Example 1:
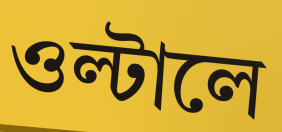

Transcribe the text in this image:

ওল্টালে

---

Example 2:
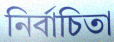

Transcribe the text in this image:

নির্বাচিতা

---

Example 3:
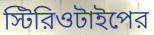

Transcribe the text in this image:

স্টিরিওটাইপের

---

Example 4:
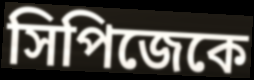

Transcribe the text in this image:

সিপিজেকে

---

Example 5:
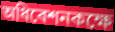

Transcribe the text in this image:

অধিবেশনকক্ষে